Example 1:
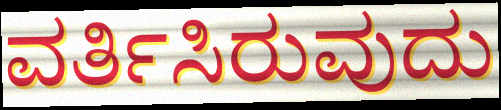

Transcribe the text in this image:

ವರ್ತಿಸಿರುವುದು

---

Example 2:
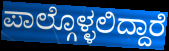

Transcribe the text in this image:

ಪಾಲ್ಗೊಳ್ಳಲಿದ್ದಾರೆ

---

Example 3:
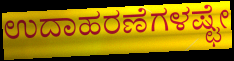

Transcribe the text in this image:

ಉದಾಹರಣೆಗಳಷ್ಟೇ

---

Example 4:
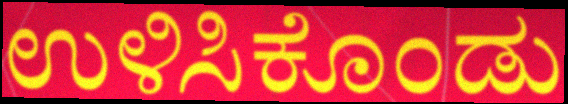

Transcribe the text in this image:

ಉಳಿಸಿಕೊಂಡು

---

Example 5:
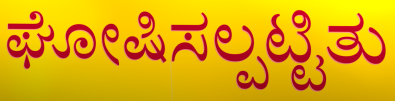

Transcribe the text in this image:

ಘೋಷಿಸಲ್ಪಟ್ಟಿತು